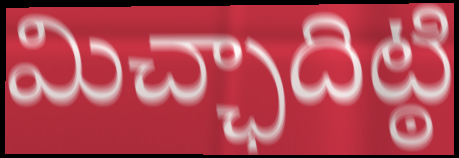
మిచ్ఛాదిట్ఠి